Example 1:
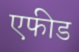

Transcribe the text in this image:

एफीड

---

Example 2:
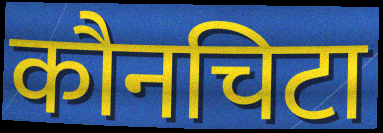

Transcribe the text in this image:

कौनचिटा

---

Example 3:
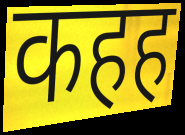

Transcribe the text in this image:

कहह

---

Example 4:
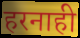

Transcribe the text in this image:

हरनाही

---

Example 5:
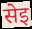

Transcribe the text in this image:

सेइ